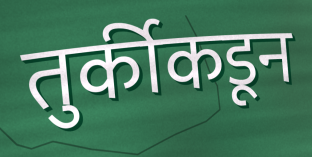
तुर्कीकडून